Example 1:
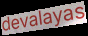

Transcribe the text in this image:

devalayas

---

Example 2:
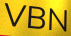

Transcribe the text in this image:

VBN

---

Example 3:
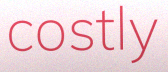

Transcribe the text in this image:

costly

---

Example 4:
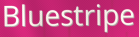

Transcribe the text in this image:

Bluestripe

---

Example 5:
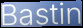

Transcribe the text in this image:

Bastin